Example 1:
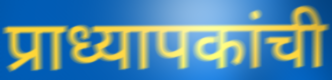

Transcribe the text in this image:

प्राध्यापकांची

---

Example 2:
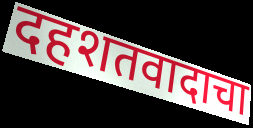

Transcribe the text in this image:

दहशतवादाचा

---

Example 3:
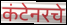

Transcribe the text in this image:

कंटेनरचे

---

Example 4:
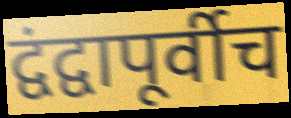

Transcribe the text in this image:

द्वंद्वापूर्वीच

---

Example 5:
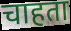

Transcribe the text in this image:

चाहता